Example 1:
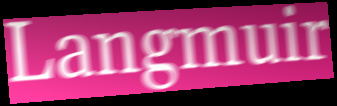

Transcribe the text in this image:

Langmuir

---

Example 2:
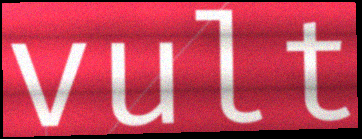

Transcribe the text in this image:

vult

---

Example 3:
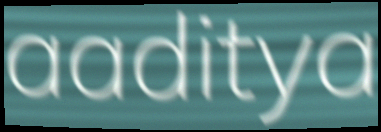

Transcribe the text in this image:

aaditya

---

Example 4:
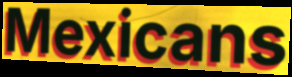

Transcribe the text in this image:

Mexicans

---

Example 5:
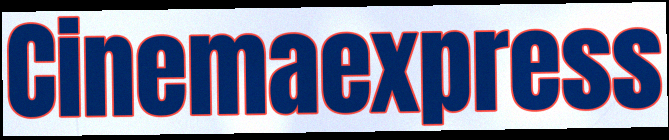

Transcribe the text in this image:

Cinemaexpress